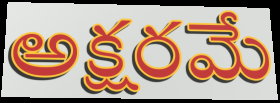
అక్షరమే